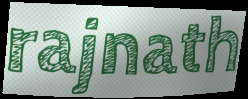
rajnath